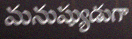
మనుష్యుడుగా